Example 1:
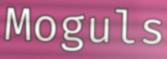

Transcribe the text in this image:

Moguls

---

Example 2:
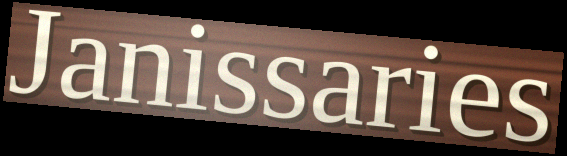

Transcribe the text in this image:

Janissaries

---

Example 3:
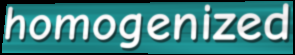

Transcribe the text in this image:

homogenized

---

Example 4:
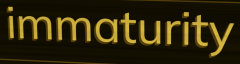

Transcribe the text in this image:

immaturity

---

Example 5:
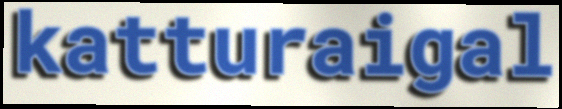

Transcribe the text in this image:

katturaigal